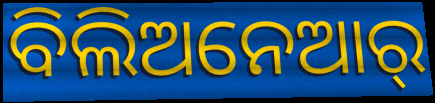
ବିଲିଅନେଆର୍